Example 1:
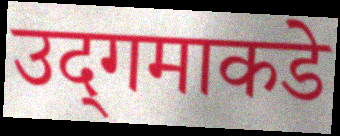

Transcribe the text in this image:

उद्‌गमाकडे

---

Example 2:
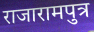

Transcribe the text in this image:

राजारामपुत्र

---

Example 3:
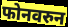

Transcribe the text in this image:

फोनवरुन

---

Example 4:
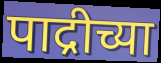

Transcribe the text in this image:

पाद्रीच्या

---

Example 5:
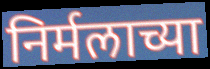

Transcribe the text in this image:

निर्मलाच्या